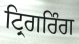
ਟ੍ਰਿਗਰਿੰਗ